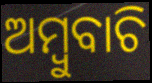
ଅମ୍ବୁବାଚି